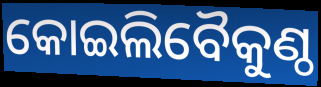
କୋଇଲିବୈକୁଣ୍ଠ